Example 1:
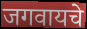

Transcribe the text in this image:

जगवायचे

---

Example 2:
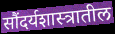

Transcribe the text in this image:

सौंदर्यशास्त्रातील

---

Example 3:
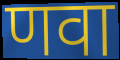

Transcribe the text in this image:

णवा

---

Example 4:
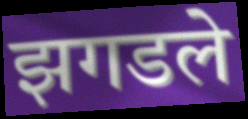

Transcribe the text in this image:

झगडले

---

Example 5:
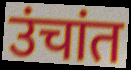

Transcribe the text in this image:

उंचांत